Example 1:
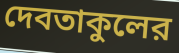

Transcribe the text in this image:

দেবতাকুলের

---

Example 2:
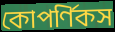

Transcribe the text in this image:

কোপর্ণিকস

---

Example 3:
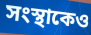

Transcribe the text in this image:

সংস্থাকেও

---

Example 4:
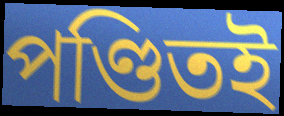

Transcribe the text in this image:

পণ্ডিতই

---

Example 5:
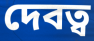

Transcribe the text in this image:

দেবত্ব